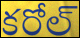
కరోల్